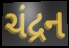
ચંદ્રન